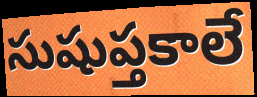
సుషుప్తకాలే